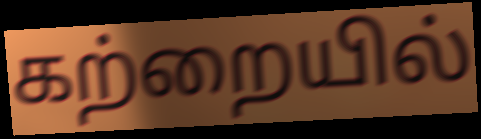
கற்றையில்